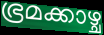
ഭ്രമക്കാഴ്ച